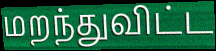
மறந்துவிட்ட